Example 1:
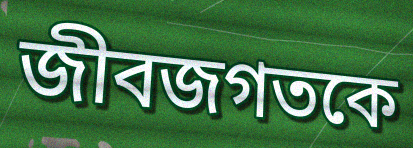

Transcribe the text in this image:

জীবজগতকে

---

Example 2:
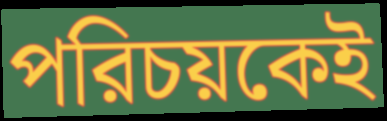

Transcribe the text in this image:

পরিচয়কেই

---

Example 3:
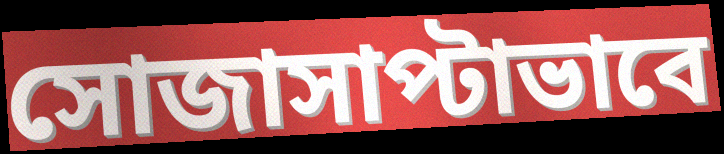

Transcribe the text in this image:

সোজাসাপ্টাভাবে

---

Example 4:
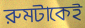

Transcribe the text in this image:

রুমটাকেই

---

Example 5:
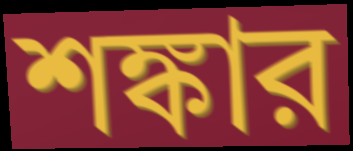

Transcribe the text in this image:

শঙ্কার